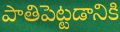
పాతిపెట్టడానికి